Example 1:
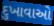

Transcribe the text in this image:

દુખાવાઓ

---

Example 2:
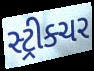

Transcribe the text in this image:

સ્ટ્રીક્ચર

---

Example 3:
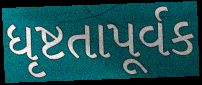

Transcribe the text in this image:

ધૃષ્ટતાપૂર્વક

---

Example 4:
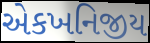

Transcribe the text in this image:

એકખનિજીય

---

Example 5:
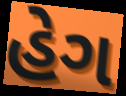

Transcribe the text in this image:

હેગ